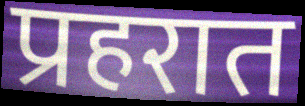
प्रहरात